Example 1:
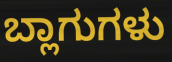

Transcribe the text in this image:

ಬ್ಲಾಗುಗಳು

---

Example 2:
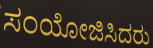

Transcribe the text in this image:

ಸಂಯೋಜಿಸಿದರು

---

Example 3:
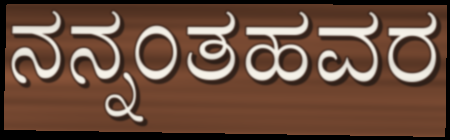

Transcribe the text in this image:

ನನ್ನಂತಹವರ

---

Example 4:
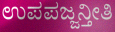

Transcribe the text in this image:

ಉಪಪಜ್ಜನ್ತೀತಿ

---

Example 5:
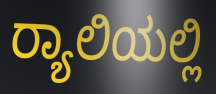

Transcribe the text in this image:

ರ‍್ಯಾಲಿಯಲ್ಲಿ